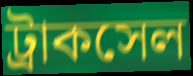
ট্রাকসেল